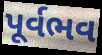
પૂર્વભવ